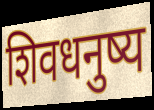
शिवधनुष्य